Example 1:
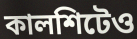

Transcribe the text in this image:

কালশিটেও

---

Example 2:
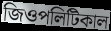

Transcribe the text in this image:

জিওপলিটিকাল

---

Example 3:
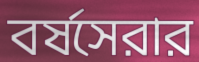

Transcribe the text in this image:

বর্ষসেরার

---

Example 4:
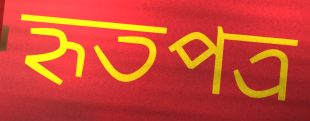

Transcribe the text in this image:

হৃতপত্র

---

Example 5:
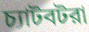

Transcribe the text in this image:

চ্যাটবটরা